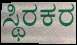
ಸ್ಥಿರಕರ